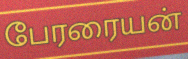
பேரரையன்